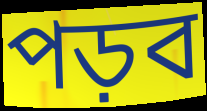
পড়ব